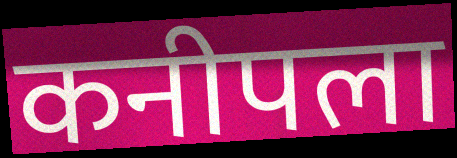
कनीपला